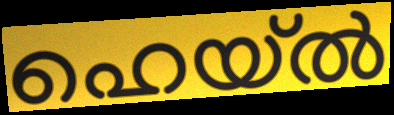
ഹെയ്ൽ